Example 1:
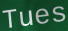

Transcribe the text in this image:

Tues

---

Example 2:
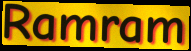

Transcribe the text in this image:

Ramram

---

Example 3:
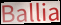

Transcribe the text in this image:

Ballia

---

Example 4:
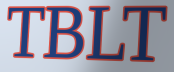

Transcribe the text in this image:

TBLT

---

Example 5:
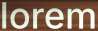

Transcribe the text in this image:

lorem